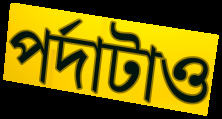
পর্দাটাও